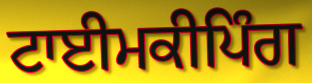
ਟਾਈਮਕੀਪਿੰਗ